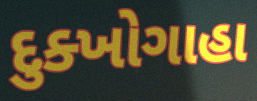
દુક્ખોગાહા